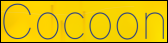
Cocoon